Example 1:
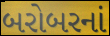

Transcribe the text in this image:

બરોબરનાં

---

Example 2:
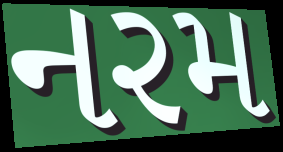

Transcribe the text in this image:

નરમ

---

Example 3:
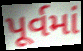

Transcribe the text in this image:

પૂર્વમાં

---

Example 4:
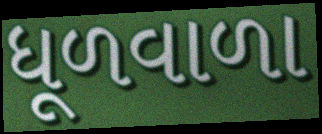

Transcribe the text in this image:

ધૂળવાળા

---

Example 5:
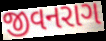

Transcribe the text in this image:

જીવનરાગ